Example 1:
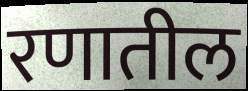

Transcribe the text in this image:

रणातील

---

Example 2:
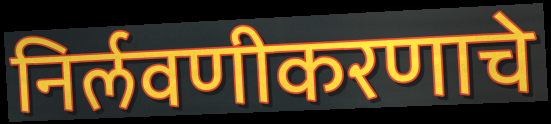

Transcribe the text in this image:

निर्लवणीकरणाचे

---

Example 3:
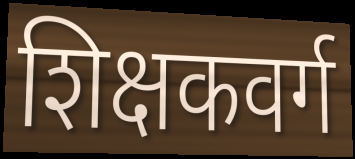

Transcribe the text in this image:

शिक्षकवर्ग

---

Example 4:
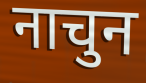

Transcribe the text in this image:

नाचुन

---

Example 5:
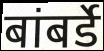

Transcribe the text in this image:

बांबर्डे